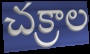
చక్రాల